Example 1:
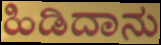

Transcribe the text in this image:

ಹಿಡಿದಾನು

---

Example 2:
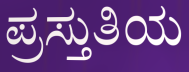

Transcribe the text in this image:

ಪ್ರಸ್ತುತಿಯ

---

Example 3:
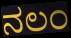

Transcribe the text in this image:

ನಲಂ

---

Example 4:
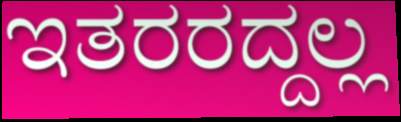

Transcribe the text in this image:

ಇತರರದ್ದಲ್ಲ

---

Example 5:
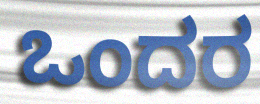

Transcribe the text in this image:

ಒಂದರ